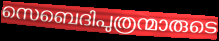
സെബെദിപുത്രന്മാരുടെ